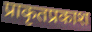
प्राकृतप्रकाश